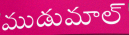
ముడుమాల్